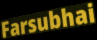
Farsubhai